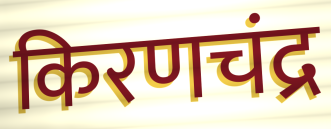
किरणचंद्र